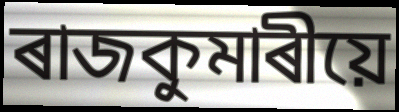
ৰাজকুমাৰীয়ে